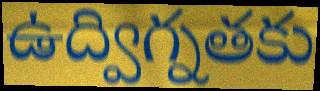
ఉద్విగ్నతకు